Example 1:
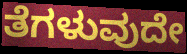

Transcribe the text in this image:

ತೆಗಳುವುದೇ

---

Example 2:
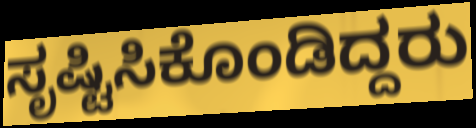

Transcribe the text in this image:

ಸೃಷ್ಟಿಸಿಕೊಂಡಿದ್ದರು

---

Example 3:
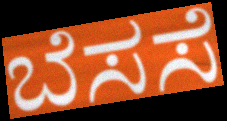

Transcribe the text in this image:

ಬೆಸಸೆ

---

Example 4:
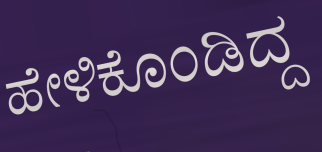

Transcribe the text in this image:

ಹೇಳಿಕೊಂಡಿದ್ದ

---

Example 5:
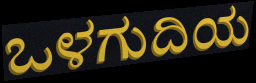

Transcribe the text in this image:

ಒಳಗುದಿಯ